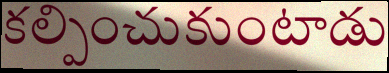
కల్పించుకుంటాడు